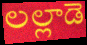
లల్లాడె